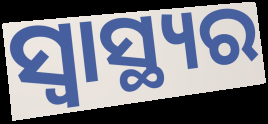
ସ୍ୱାସ୍ଥ୍ୟର